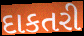
દાકતરી